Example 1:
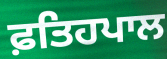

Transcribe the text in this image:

ਫ਼ਤਿਹਪਾਲ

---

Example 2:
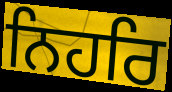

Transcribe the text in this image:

ਨਿਹਰਿ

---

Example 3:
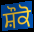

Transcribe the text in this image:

ਸ਼ੌਕੋ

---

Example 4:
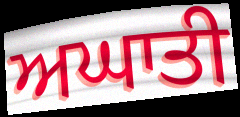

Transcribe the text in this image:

ਅਘਾਤੀ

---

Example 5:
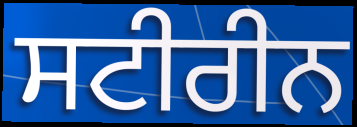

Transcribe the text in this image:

ਸਟੀਰੀਨ